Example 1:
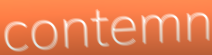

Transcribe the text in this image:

contemn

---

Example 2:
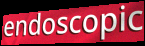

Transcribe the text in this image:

endoscopic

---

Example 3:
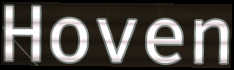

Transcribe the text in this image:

Hoven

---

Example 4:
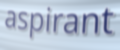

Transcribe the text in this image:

aspirant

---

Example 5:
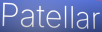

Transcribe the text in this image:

Patellar